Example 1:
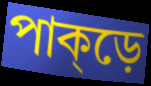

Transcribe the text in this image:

পাক্ড়ে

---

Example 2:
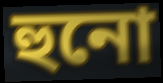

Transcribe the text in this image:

হুনো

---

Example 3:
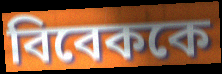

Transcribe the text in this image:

বিবেককে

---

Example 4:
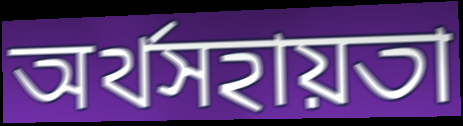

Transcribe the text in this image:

অর্থসহায়তা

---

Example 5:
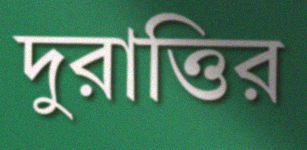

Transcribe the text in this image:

দুরাত্তির